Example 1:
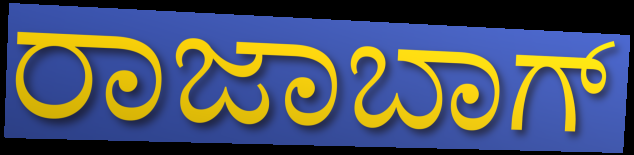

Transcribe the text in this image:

ರಾಜಾಬಾಗ್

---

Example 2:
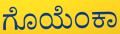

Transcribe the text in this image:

ಗೊಯೆಂಕಾ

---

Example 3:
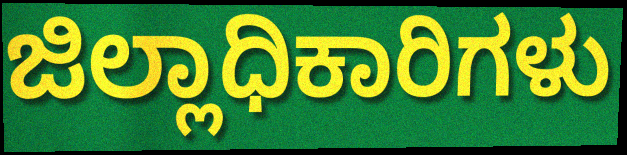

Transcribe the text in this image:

ಜಿಲ್ಲಾಧಿಕಾರಿಗಳು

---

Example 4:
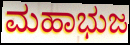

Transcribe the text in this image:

ಮಹಾಭುಜ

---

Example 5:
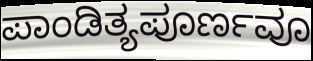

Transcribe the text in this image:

ಪಾಂಡಿತ್ಯಪೂರ್ಣವೂ